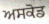
ਅਸਕੋਡ